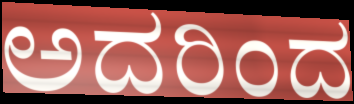
ಅದರಿಂದ